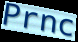
Prnc